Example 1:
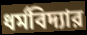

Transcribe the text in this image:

ধর্মবিদ্যার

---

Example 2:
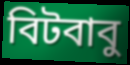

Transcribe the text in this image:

বিটবাবু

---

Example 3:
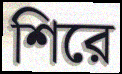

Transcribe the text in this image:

শিরে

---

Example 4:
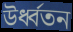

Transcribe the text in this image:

উর্ধ্বতন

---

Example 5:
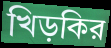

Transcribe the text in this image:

খিড়কির